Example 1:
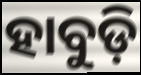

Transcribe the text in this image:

ହାବୁଡ଼ି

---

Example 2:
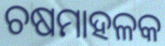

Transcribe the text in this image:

ଚଷମାହଳକ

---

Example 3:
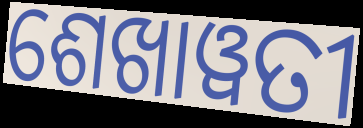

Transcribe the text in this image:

ଶେଖାୱତୀ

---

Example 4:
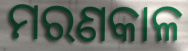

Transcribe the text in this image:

ମରଣକାଳ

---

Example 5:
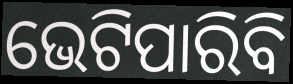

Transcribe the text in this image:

ଭେଟିପାରିବି